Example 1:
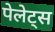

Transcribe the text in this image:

पेलेट्स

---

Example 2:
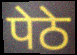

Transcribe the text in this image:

पेठे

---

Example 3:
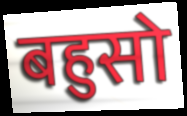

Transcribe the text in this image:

बहुसो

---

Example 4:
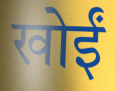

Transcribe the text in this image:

खोईं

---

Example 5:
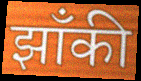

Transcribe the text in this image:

झाँकी